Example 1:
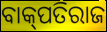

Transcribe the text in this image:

ବାକ୍‌ପତିରାଜ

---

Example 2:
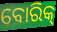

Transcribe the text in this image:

ବୋରିକ୍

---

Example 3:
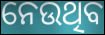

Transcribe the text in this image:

ନେଉଥିବ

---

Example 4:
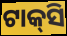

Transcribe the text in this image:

ଟାକ୍‍ସି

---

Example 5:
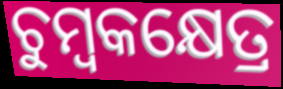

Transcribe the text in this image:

ଚୁମ୍ବକକ୍ଷେତ୍ର